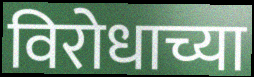
विरोधाच्या